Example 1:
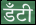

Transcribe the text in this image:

डँटी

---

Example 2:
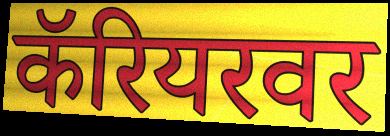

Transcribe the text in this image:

कॅरियरवर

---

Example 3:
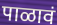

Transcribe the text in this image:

पाळावं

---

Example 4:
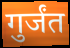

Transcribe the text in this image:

गुर्जंत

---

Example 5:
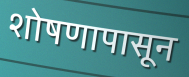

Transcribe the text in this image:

शोषणापासून